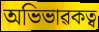
অভিভাৱকত্ব